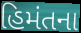
હિમંતના